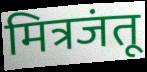
मित्रजंतू